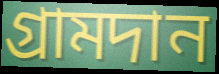
গ্রামদান